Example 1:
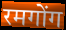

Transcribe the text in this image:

रमगोंग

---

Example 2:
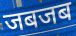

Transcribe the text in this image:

जबजब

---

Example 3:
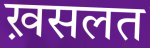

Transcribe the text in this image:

ख़सलत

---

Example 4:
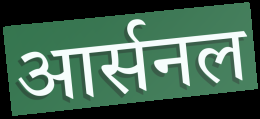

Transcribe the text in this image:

आर्सनल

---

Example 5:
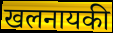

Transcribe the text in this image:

खलनायकी